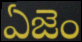
ఏజెం